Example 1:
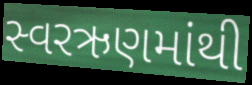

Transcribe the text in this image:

સ્વરઋણમાંથી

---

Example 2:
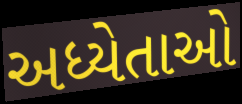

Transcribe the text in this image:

અધ્યેતાઓ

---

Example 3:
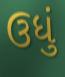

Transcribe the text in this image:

ઉધું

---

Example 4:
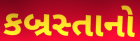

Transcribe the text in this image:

કબ્રસ્તાનો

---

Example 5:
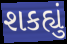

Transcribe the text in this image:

શકહ્યું